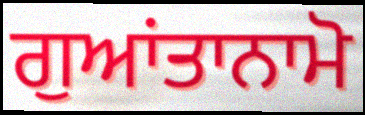
ਗੁਆਂਤਾਨਾਮੋ